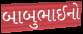
બાબુભાઈનો